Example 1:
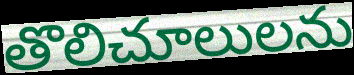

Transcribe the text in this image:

తొలిచూలులను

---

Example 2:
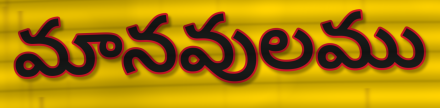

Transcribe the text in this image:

మానవులము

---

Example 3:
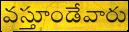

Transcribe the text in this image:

వస్తూండేవారు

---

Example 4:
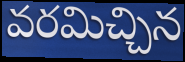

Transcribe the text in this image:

వరమిచ్చిన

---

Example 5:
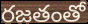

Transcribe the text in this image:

రజతంతో